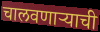
चालवणाऱ्याची